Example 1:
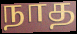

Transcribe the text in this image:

நாத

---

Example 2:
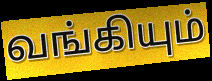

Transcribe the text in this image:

வங்கியும்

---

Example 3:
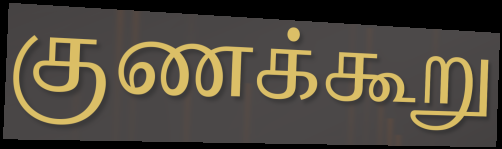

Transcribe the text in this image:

குணக்கூறு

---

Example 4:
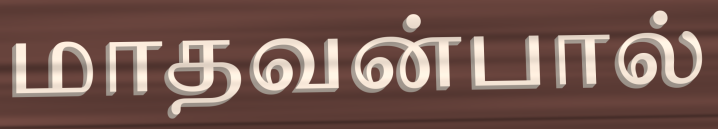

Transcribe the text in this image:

மாதவன்பால்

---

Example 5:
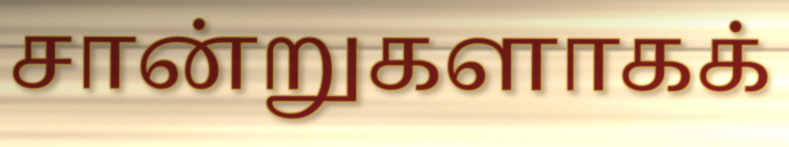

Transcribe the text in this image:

சான்றுகளாகக்